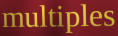
multiples